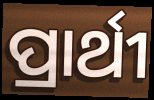
ପ୍ରାର୍ଥୀ